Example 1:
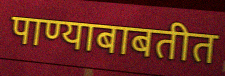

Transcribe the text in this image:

पाण्याबाबतीत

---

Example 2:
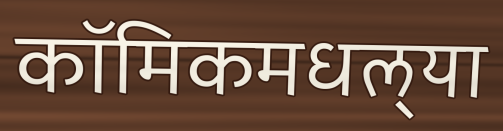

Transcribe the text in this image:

कॉमिकमधल्या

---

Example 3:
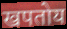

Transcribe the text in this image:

खपतोय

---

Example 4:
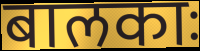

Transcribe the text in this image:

बालकाः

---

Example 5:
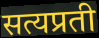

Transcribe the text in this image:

सत्यप्रती